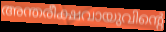
അന്തരീക്ഷവായുവിന്റെ